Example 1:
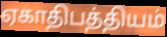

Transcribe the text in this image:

ஏகாதிபத்தியம்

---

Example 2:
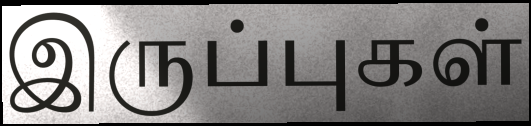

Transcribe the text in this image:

இருப்புகள்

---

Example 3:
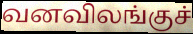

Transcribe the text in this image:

வனவிலங்குச்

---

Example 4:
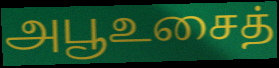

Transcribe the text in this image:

அபூஉசைத்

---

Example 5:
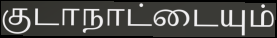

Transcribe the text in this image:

குடாநாட்டையும்